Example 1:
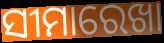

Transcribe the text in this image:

ସୀମାରେଖା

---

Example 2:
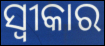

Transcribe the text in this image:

ସ୍ୱୀକାର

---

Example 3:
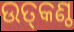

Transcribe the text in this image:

ଉତ୍‌କଣ୍ଠ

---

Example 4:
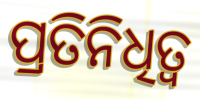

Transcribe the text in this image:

ପ୍ରତିନିଧିତ୍ବ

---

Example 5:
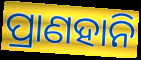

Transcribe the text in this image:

ପ୍ରାଣହାନି